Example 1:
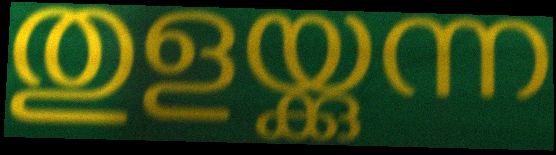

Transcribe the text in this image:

തുളയ്ക്കുന്ന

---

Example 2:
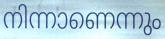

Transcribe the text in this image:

നിന്നാണെന്നും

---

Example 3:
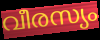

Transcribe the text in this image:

വീരസ്യം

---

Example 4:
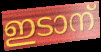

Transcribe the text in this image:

ഇടാന്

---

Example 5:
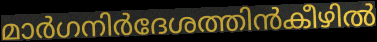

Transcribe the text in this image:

മാർഗനിർദേശത്തിൻകീഴിൽ